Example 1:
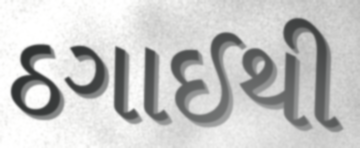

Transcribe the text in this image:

ઠગાઈથી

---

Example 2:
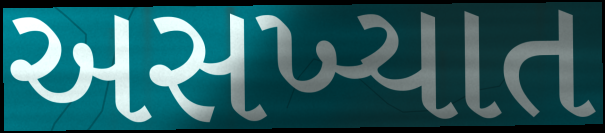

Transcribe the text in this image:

અસખ્યાત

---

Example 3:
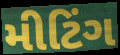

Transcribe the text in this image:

મીટિંગ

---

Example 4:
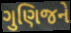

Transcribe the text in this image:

ગુણિજને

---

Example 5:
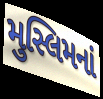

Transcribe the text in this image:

મુસ્લિમનાં